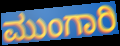
ಮುಂಗಾರಿ